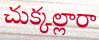
చుక్కల్లారా